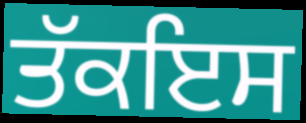
ਤੱਕਇਸ